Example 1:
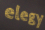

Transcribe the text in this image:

elegy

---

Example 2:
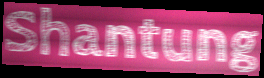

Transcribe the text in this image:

Shantung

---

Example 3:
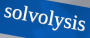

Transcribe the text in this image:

solvolysis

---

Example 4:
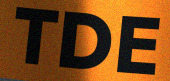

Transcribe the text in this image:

TDE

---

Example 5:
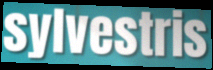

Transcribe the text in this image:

sylvestris